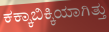
ಕಕ್ಕಾಬಿಕ್ಕಿಯಾಗಿತ್ತು